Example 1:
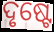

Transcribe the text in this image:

ଦୃଷ୍ଟେ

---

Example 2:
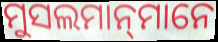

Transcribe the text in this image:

ମୁସଲମାନ୍‌ମାନେ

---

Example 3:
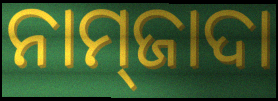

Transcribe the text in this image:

ନାମ୍‍ଜାଦା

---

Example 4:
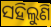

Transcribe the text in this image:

ସହିଲୁଣି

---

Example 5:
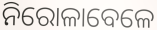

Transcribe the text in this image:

ନିରୋଳାବେଳେ